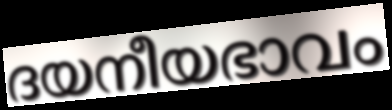
ദയനീയഭാവം